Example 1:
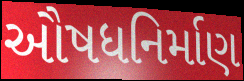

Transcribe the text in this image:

ઔષધનિર્માણ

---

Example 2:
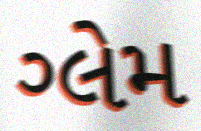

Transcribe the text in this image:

ગ્લેમ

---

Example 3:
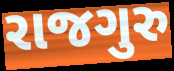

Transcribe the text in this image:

રાજગુરુ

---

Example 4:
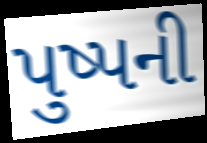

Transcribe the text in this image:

પુષ્પની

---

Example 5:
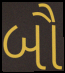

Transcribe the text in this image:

બૌ